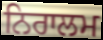
ਨਿਰਾਲਮ